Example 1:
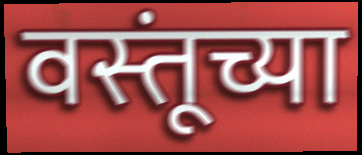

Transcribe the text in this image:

वस्तूंच्या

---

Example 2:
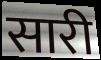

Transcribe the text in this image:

सारी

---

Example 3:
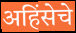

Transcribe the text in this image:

अहिंसेचे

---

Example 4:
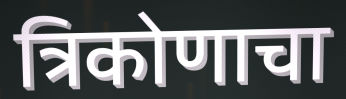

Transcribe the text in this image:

त्रिकोणाचा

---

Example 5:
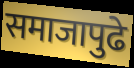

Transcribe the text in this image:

समाजापुढे